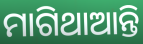
ମାଗିଥାଆନ୍ତି